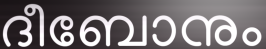
ദീബോനും